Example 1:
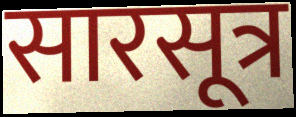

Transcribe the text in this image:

सारसूत्र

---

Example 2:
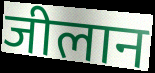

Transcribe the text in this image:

जीलान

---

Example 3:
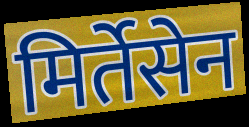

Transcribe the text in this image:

मिर्तेसेन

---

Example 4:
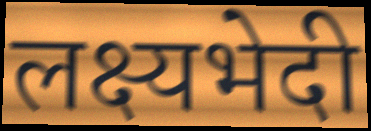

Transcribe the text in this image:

लक्ष्यभेदी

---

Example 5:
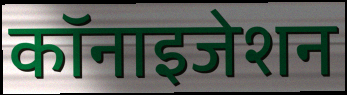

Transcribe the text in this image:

कॉनाइजेशन